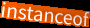
instanceof